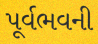
પૂર્વભવની